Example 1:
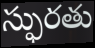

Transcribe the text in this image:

స్ఫురతు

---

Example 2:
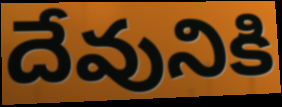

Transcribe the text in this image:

దేవునికి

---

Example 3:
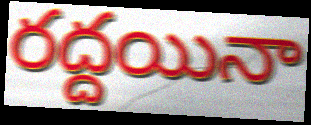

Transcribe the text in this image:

రద్దయినా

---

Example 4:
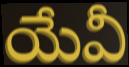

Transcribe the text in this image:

యేవీ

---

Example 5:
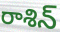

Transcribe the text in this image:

రాశిన్